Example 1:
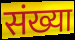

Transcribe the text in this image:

संख्या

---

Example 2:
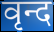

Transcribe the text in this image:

वृन्द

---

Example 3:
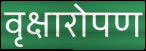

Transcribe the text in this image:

वृक्षारोपण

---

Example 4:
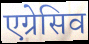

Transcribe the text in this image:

एग्रेसिव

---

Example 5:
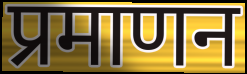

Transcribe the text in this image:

प्रमाणन